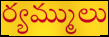
ర్యమ్ములు